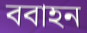
ববাহন